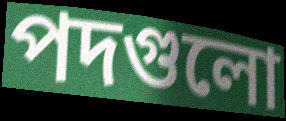
পদগুলো